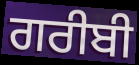
ਗਰੀਬੀ